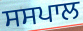
ਸਸਪਾਲ